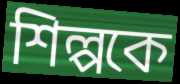
শিল্পকে